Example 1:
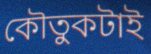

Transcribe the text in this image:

কৌতুকটাই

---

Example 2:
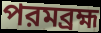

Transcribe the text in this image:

পরমব্রহ্ম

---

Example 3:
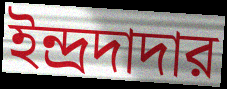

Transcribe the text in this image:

ইন্দ্রদাদার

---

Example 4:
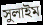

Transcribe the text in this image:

সুলাইম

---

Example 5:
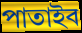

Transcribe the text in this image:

পাতাইব